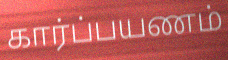
கார்ப்பயணம்